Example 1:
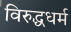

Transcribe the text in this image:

विरुद्धधर्म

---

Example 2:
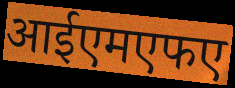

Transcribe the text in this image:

आईएमएफए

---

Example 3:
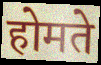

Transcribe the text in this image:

होमते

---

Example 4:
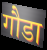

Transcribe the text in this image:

गौडा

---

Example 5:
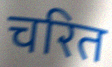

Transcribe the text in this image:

चरित